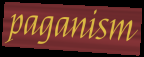
paganism